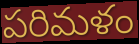
పరిమళం